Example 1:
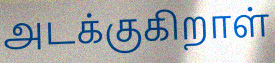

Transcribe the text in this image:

அடக்குகிறாள்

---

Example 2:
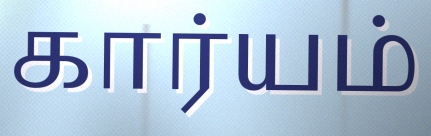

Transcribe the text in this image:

கார்யம்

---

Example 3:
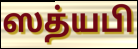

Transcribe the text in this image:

ஸத்யபி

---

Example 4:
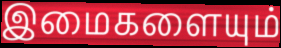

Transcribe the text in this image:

இமைகளையும்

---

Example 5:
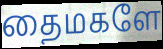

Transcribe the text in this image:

தைமகளே